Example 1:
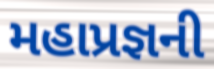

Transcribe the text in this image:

મહાપ્રજ્ઞની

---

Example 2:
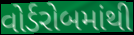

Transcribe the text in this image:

વોર્ડરોબમાંથી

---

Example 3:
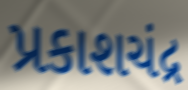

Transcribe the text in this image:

પ્રકાશચંદ્ર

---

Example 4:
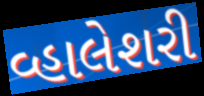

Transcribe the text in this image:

વ્હાલેશરી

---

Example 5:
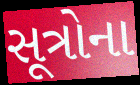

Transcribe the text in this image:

સૂત્રોના